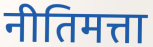
नीतिमत्ता